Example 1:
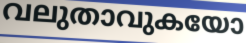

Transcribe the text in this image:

വലുതാവുകയോ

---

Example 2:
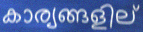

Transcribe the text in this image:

കാര്യങ്ങളില്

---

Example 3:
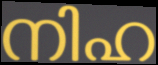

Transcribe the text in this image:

നിഹ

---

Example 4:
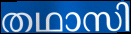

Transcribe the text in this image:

തഥാസി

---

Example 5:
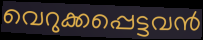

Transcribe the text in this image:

വെറുക്കപ്പെട്ടവൻ